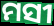
ମସୀ